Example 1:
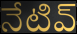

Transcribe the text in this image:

నేటివ్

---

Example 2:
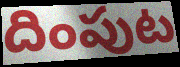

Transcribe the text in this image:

దింపుట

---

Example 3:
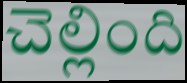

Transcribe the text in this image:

చెల్లింది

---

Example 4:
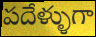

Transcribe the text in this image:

పదేళ్ళుగా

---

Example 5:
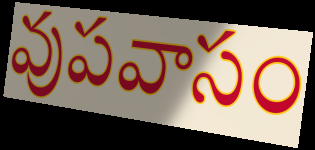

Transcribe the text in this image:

వుపవాసం